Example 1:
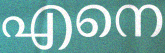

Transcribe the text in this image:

എനെ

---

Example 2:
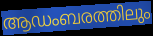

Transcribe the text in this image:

ആഡംബരത്തിലും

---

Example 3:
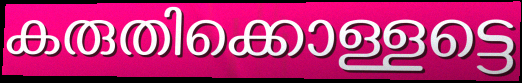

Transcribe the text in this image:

കരുതിക്കൊള്ളട്ടെ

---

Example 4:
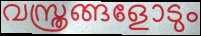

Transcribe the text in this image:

വസ്ത്രങ്ങളോടും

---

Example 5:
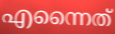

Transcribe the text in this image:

എന്നൈത്